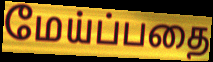
மேய்ப்பதை